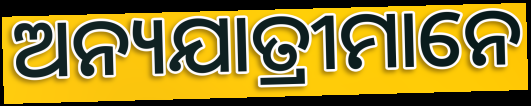
ଅନ୍ୟଯାତ୍ରୀମାନେ